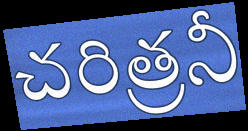
చరిత్రనీ